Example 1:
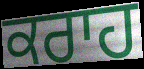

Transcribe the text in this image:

ਕਰਾਹ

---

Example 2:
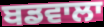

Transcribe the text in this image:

ਬਡਵਾਲਾ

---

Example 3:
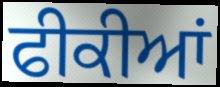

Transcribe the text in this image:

ਫੀਕੀਆਂ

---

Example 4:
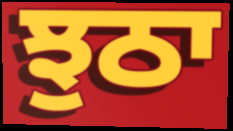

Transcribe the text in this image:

ਝੁਠਾ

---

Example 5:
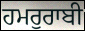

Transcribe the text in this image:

ਹਮਰੁਰਾਬੀ